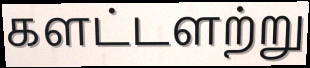
களட்டளற்று